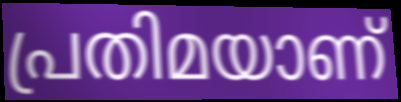
പ്രതിമയാണ്